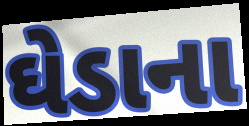
ઘેડાના